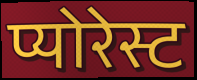
प्योरेस्ट